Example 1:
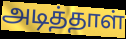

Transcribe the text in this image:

அடித்தாள்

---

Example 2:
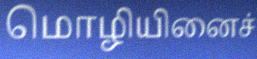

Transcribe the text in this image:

மொழியினைச்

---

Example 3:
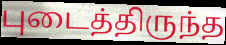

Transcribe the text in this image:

புடைத்திருந்த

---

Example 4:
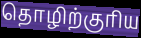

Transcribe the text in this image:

தொழிற்குரிய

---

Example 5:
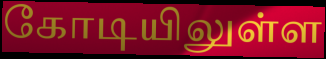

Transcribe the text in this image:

கோடியிலுள்ள